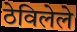
ठेविलेले